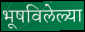
भूषविलेल्या